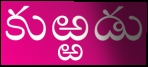
కుఱ్ఱడు